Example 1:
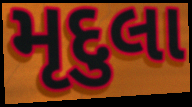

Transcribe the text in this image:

મૃદુલા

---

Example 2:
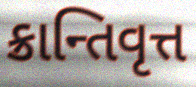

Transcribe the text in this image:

ક્રાન્તિવૃત્ત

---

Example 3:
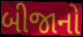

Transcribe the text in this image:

બીજાનો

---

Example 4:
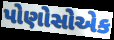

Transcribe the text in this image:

પોણોસોએક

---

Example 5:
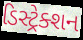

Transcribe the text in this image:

ડિસ્ટ્રેક્શન